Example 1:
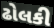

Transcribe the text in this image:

ઢોલકી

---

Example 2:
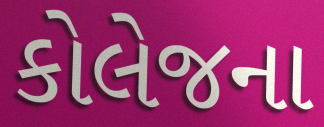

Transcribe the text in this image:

કોલેજના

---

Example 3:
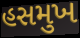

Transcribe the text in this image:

હસમુખ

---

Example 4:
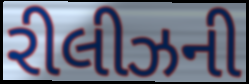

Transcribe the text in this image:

રીલીઝની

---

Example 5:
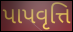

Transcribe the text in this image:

પાપવૃત્તિ